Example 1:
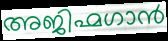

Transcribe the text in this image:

അജിഹ്മഗാൻ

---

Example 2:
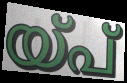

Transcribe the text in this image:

യ്പ്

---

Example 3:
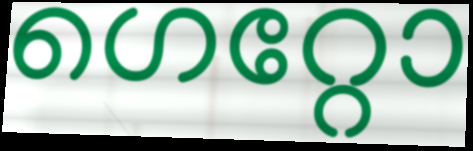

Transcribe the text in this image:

ഗെറ്റോ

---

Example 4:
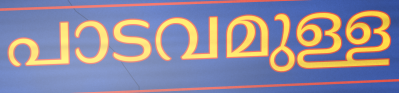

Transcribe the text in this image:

പാടവമുള്ള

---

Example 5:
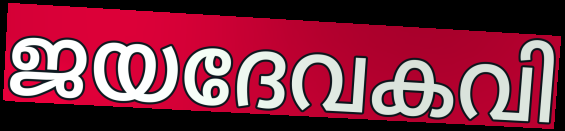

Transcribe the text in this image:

ജയദേവകവി